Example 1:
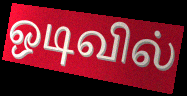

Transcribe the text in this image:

ஒடிவில்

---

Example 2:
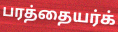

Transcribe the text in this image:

பரத்தையர்க்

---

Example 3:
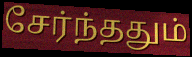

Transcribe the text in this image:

சேர்ந்ததும்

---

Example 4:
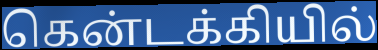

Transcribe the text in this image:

கென்டக்கியில்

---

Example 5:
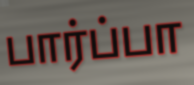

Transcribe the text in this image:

பார்ப்பா